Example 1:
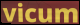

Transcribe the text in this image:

vicum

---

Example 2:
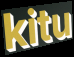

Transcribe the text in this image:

kitu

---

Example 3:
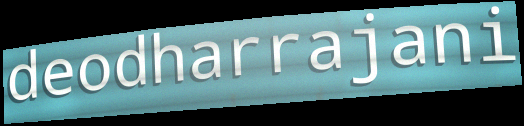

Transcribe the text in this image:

deodharrajani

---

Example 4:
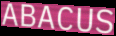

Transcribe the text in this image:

ABACUS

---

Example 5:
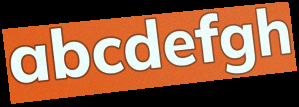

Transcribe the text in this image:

abcdefgh